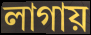
লাগায়